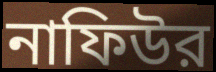
নাফিউর